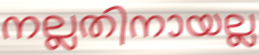
നല്ലതിനായല്ല